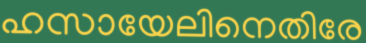
ഹസായേലിനെതിരേ